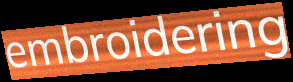
embroidering